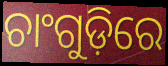
ଚାଂଗୁଡ଼ିରେ